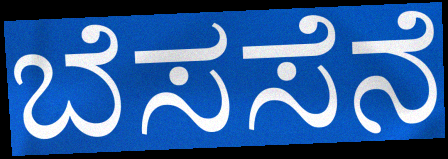
ಬೆಸಸೆನೆ